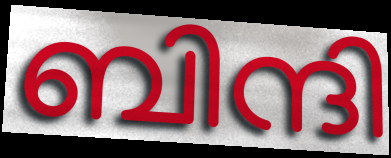
ബിന്ദി